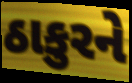
ઠાકુરને